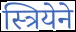
स्त्रियेने